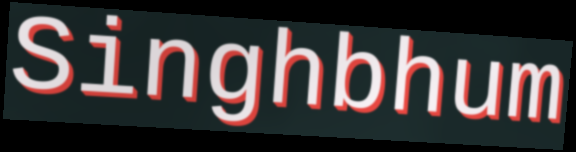
Singhbhum